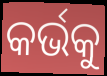
କର୍ଭକୁ